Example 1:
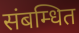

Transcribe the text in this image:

संबम्धित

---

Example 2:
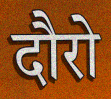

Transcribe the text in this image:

दौरो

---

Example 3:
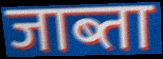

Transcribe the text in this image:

जाब्ता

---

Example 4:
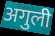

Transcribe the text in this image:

अगुली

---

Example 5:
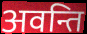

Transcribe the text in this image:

अवन्ति